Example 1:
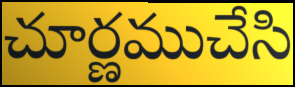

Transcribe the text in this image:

చూర్ణముచేసి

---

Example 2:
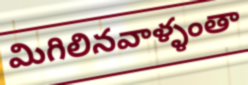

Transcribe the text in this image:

మిగిలినవాళ్ళంతా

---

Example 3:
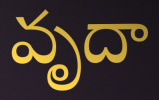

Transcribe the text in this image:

వృదా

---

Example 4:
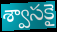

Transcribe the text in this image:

శ్వాసకై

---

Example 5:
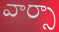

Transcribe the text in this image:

వార్సా